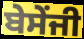
ਬੇਸੇਂਜੀ